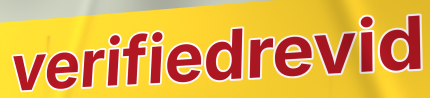
verifiedrevid